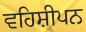
ਵਹਿਸ਼ੀਪਨ